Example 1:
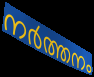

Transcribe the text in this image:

നർത്തനം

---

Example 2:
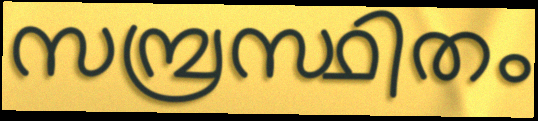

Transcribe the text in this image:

സമ്പ്രസ്ഥിതം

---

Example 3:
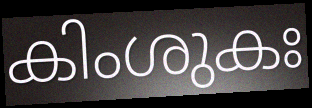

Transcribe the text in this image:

കിംശുകഃ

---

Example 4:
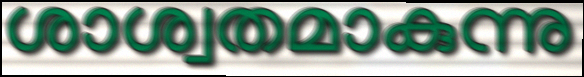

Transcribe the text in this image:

ശാശ്വതമാകുന്നു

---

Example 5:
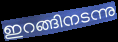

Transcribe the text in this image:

ഇറങ്ങിനടന്നു